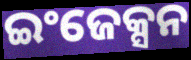
ଇଂଜେକ୍ସନ